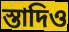
স্তাদিও